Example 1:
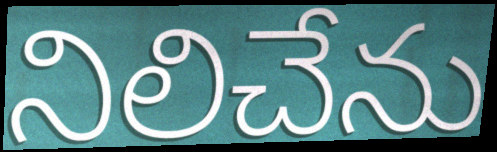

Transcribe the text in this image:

నిలిచేను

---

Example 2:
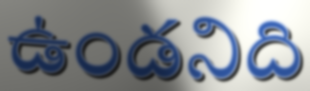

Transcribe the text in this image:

ఉండనిది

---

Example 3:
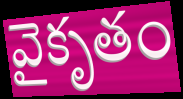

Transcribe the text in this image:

వైకృతం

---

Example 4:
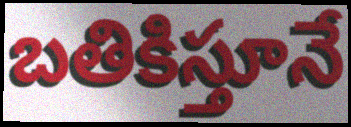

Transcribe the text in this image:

బతికిస్తూనే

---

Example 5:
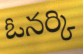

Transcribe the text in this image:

ఓనర్కి